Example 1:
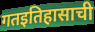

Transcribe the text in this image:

गतइतिहासाची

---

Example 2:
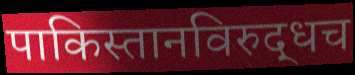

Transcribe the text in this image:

पाकिस्तानविरुद्धच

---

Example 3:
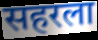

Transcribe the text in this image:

सहरला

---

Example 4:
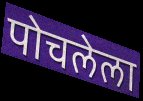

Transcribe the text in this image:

पोचलेला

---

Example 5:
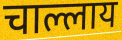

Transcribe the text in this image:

चाल्लाय